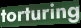
torturing